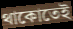
থাকোতেই